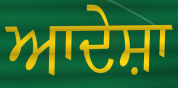
ਆਦੇਸ਼ਾ